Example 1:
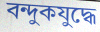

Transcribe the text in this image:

বন্দুকযুদ্ধে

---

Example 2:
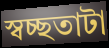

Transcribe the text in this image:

স্বচ্ছতাটা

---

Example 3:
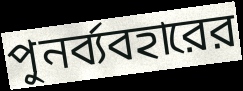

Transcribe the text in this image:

পুনর্ব্যবহারের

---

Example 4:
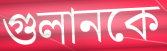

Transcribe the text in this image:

গুলানকে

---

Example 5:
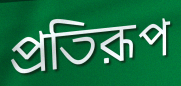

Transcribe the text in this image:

প্রতিরূপ